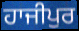
ਹਾਜੀਪੁਰ